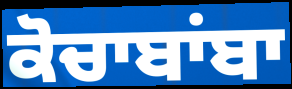
ਕੋਚਾਬਾਂਬਾ